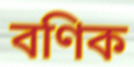
বণিক